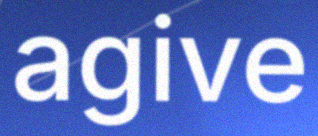
agive